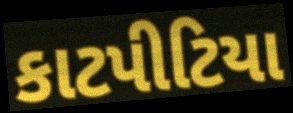
કાટપીટિયા